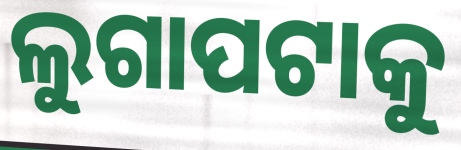
ଲୁଗାପଟାକୁ